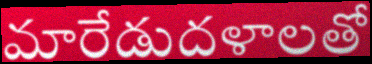
మారేడుదళాలతో